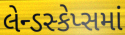
લેન્ડસ્કેપ્સમાં